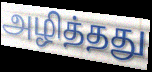
அழித்தது